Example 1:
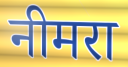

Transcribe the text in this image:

नीमरा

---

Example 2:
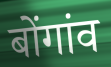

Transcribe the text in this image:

बोंगांव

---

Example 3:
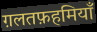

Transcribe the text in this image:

ग़लतफ़हमियाँ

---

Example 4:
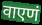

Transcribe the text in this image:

वाएणं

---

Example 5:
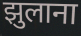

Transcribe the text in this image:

झुलाना